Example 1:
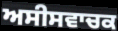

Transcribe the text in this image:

ਅਸੀਸਵਾਚਕ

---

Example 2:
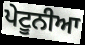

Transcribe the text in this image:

ਪੇਟੂਨੀਆ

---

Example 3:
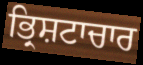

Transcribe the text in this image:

ਭ੍ਰਿਸ਼ਟਾਚਾਰ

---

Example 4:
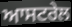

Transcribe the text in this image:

ਆਸਟਰੇਲ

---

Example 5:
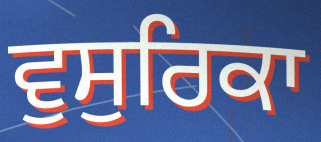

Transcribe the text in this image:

ਵੁਸੁਰਿਕਾ